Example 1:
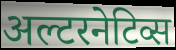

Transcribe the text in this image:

अल्टरनेटिव्स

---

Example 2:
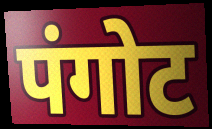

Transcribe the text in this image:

पंगोट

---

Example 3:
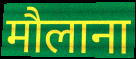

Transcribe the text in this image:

मौलाना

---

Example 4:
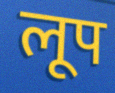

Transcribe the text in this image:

लूप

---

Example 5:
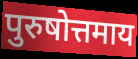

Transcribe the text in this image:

पुरुषोत्तमाय